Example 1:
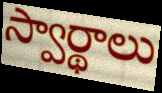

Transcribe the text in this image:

స్వార్థాలు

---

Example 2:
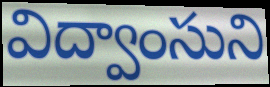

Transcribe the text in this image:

విద్వాంసుని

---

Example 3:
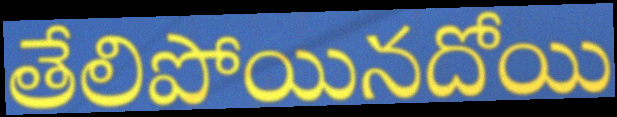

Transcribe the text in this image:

తేలిపోయినదోయి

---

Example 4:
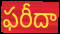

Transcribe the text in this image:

ఫరీదా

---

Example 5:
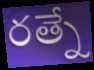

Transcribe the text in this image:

రత్నే